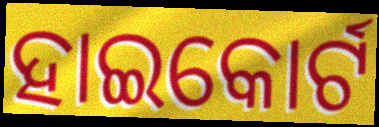
ହାଇକୋର୍ଟ